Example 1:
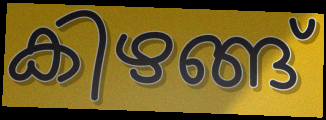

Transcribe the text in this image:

കിഴങ്ങ്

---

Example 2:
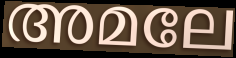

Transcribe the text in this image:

അമലേ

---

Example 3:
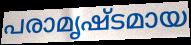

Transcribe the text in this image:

പരാമൃഷ്ടമായ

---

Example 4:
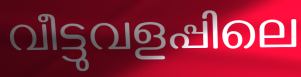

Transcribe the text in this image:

വീട്ടുവളപ്പിലെ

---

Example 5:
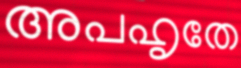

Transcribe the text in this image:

അപഹൃതേ